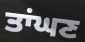
ਤਾਂਘਣ